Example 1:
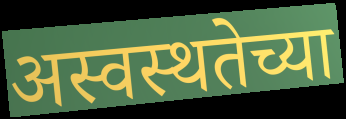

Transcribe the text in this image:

अस्वस्थतेच्या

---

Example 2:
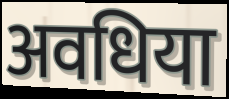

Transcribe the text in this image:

अवधिया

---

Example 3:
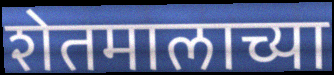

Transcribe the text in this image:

शेतमालाच्या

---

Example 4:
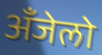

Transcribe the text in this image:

अँजेलो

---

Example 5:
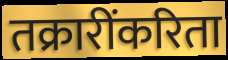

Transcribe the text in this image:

तक्रारींकरिता